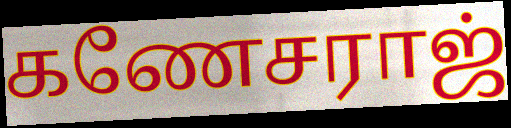
கணேசராஜ்